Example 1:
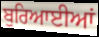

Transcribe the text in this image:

ਬੁਰਿਆਈਆਂ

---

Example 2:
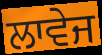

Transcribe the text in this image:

ਲਾਵੇਜ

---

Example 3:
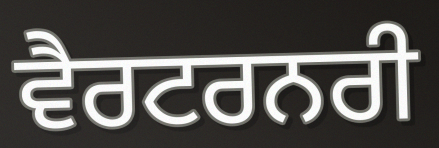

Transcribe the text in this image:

ਵੈਰਟਰਨਰੀ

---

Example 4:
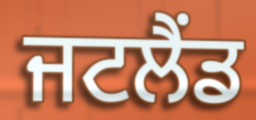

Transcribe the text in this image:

ਜਟਲੈਂਡ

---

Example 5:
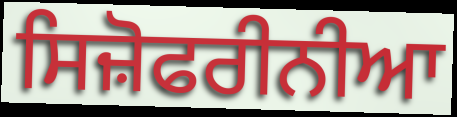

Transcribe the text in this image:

ਸਿਜ਼ੋਫਰੀਨੀਆ